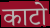
काटो